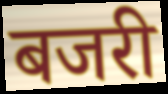
बजरी